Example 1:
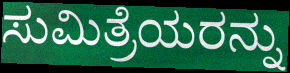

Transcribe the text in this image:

ಸುಮಿತ್ರೆಯರನ್ನು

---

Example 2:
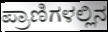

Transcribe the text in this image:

ಪ್ರಾಣಿಗಳಲ್ಲಿನ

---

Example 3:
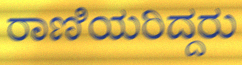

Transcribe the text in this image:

ರಾಣಿಯರಿದ್ದರು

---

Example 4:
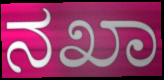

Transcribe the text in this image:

ನಖಾ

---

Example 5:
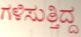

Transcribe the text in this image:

ಗಳಿಸುತ್ತಿದ್ದ